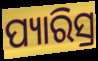
ପ୍ୟାରିସ୍ର